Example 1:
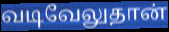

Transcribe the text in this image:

வடிவேலுதான்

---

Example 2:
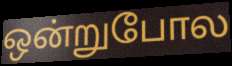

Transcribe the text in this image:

ஒன்றுபோல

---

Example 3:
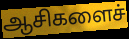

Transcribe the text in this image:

ஆசிகளைச்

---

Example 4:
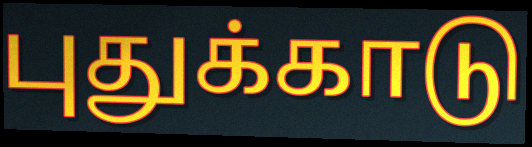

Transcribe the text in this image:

புதுக்காடு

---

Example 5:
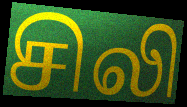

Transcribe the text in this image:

சிலி